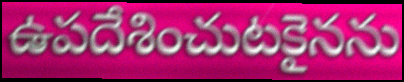
ఉపదేశించుటకైనను